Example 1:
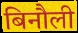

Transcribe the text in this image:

बिनौली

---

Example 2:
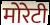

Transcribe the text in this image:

मोरेटी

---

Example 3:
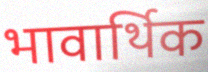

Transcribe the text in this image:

भावार्थिक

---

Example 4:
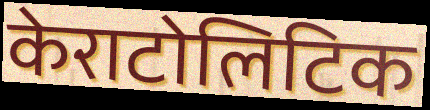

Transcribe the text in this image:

केराटोलिटिक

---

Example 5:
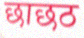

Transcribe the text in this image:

छाछठ